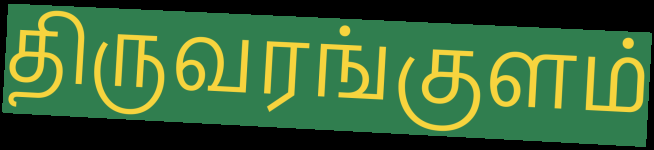
திருவரங்குளம்